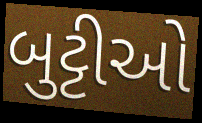
બુટ્ટીઓ